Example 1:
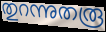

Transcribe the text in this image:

തുറന്നുതരൂ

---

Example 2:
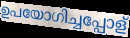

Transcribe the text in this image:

ഉപയോഗിച്ചപ്പോള്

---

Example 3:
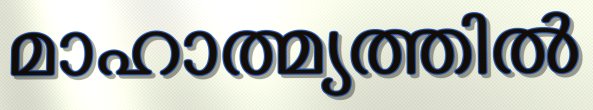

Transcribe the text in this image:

മാഹാത്മ്യത്തിൽ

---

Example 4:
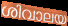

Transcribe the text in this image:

ശിവാലയ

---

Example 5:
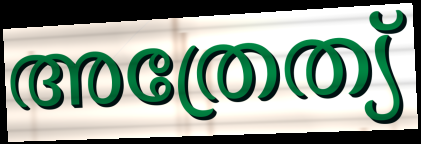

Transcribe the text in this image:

അത്രേത്യ്